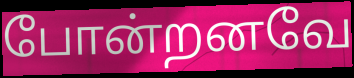
போன்றனவே